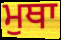
ਮੁਥਾ